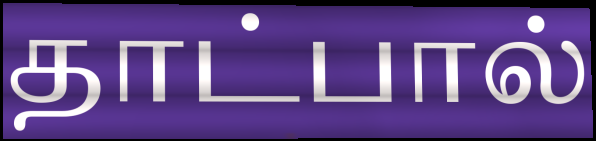
தாட்பால்